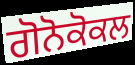
ਗੋਨੋਕੋਕਲ